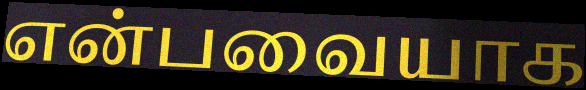
என்பவையாக